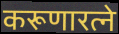
करूणारत्ने